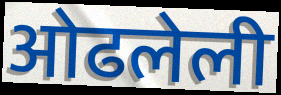
ओढलेली